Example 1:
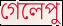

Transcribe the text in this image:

গেলেপু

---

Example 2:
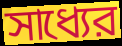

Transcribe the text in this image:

সাধ্যের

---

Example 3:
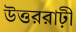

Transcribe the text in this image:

উত্তররাঢ়ী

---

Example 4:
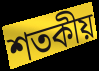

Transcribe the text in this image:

শতকীয়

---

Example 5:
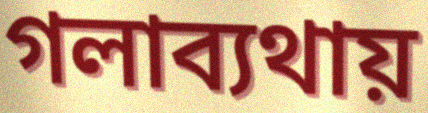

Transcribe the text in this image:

গলাব্যথায়